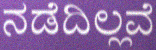
ನಡೆದಿಲ್ಲವೆ